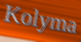
Kolyma